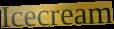
Icecream